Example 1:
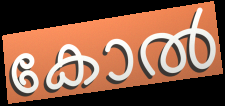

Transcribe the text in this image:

കോൽ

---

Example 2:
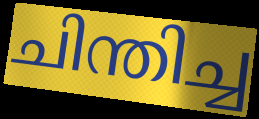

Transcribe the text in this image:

ചിന്തിച്ച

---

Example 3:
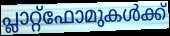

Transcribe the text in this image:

പ്ലാറ്റ്ഫോമുകൾക്ക്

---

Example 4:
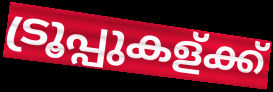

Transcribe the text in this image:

ട്രൂപ്പുകള്ക്ക്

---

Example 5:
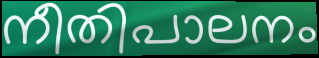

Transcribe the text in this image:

നീതിപാലനം